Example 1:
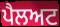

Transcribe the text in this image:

ਪੈਲਅਟ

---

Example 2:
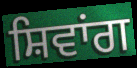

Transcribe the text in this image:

ਸ਼ਿਵਾਂਗ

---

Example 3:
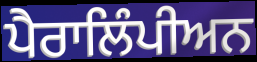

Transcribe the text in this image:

ਪੈਰਾਲਿੰਪੀਅਨ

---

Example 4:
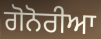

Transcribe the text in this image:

ਗੋਨੋਰੀਆ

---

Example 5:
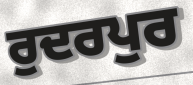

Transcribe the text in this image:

ਰੁਦਰਪੁਰ